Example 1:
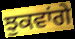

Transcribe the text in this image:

ਝੁਕਵਾਂਗੇ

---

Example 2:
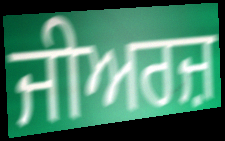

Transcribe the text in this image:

ਜੀਅਰਜ਼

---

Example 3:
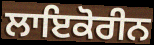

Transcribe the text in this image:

ਲਾਇਕੋਰੀਨ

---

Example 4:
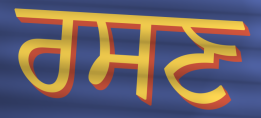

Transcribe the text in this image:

ਰਸਣ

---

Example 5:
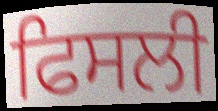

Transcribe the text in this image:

ਫਿਸਲੀ